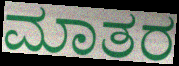
ಮಾತರ